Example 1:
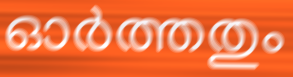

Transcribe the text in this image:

ഓർത്തതും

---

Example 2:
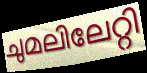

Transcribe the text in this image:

ചുമലിലേറ്റി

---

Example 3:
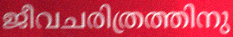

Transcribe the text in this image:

ജീവചരിത്രത്തിനു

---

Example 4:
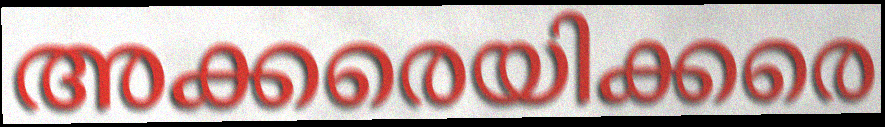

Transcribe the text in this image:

അക്കരെയിക്കരെ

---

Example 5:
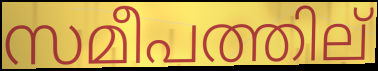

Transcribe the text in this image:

സമീപത്തില്